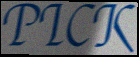
PICK